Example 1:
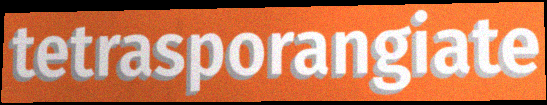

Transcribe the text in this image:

tetrasporangiate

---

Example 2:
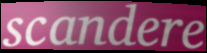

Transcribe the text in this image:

scandere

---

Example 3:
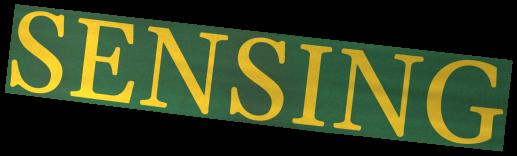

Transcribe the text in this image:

SENSING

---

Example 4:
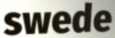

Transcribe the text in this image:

swede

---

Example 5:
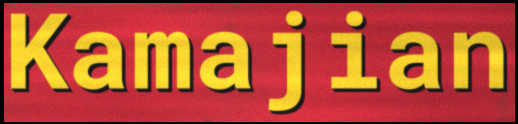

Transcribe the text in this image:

Kamajian